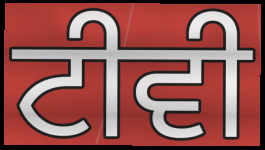
ਟੀਵੀ